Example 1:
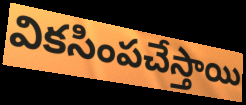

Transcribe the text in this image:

వికసింపచేస్తాయి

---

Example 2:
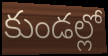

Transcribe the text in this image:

కుండల్లో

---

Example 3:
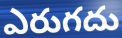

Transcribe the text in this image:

ఎరుగదు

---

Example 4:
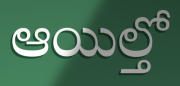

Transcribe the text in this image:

ఆయిల్తో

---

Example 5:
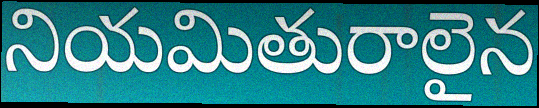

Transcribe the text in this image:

నియమితురాలైన